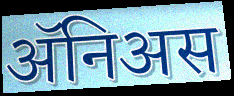
ॲनिअस